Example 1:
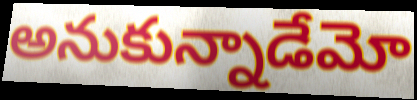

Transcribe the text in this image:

అనుకున్నాడేమో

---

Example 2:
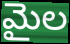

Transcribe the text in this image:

మైల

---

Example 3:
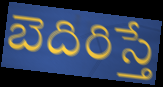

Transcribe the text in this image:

బెదిరిస్తే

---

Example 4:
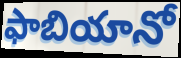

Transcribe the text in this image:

ఫాబియానో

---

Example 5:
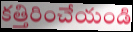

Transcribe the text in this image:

కత్తిరించేయండి